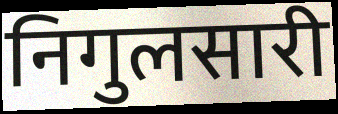
निगुलसारी